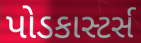
પોડકાસ્ટર્સ